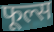
फूल्स